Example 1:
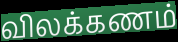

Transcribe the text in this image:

விலக்கணம்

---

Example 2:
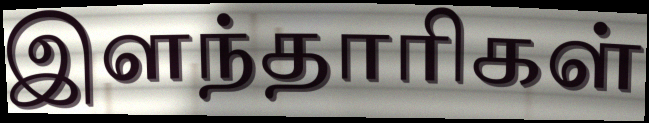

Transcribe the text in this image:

இளந்தாரிகள்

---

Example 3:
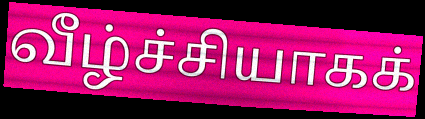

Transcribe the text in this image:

வீழ்ச்சியாகக்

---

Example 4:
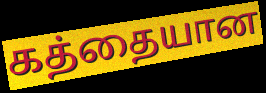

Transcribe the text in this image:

கத்தையான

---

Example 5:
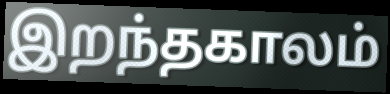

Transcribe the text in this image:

இறந்தகாலம்